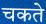
चकते